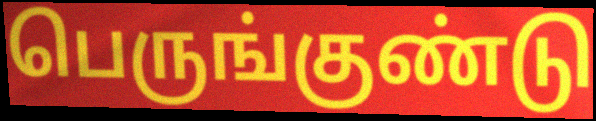
பெருங்குண்டு